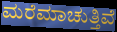
ಮರೆಮಾಚುತ್ತಿವೆ